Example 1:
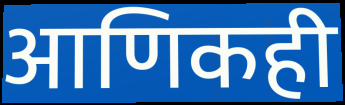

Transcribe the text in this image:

आणिकही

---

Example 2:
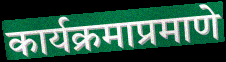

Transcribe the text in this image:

कार्यक्रमाप्रमाणे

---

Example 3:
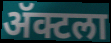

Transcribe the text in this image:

ॲक्टला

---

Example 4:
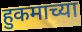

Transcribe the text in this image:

हुकमाच्या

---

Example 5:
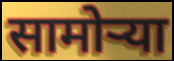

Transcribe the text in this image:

सामोऱ्या